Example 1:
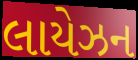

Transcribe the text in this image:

લાયેઝન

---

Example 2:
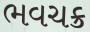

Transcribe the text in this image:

ભવચક્ર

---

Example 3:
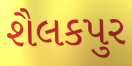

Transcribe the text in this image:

શૈલકપુર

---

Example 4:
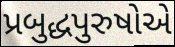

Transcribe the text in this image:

પ્રબુદ્ધપુરુષોએ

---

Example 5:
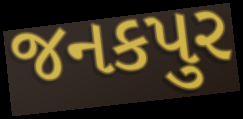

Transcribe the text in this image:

જનકપુર